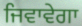
ਜਿਵਾਵੇਗਾ